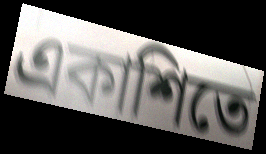
একাশিতে